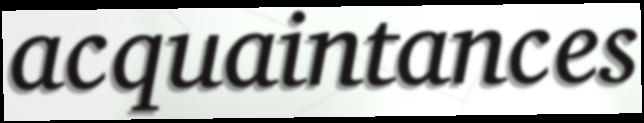
acquaintances